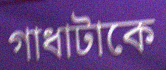
গাধাটাকে